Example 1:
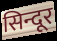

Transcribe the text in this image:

सिन्दूर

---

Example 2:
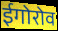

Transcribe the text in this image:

ईगोरोव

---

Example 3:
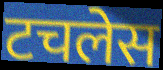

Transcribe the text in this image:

टचलेस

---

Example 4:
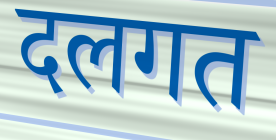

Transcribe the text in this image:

दलगत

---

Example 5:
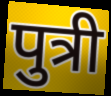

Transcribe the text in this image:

पुत्री